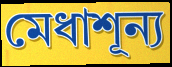
মেধাশূন্য